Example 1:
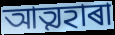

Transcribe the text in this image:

আত্মহাৰা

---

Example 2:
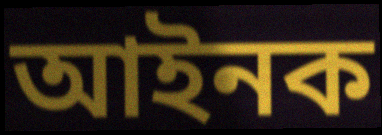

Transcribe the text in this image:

আইনক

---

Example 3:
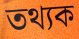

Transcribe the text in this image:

তথ্যক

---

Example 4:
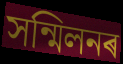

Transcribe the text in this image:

সন্মিলনৰ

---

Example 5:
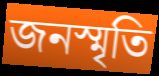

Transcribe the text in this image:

জনস্মৃতি